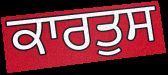
ਕਾਰਤੁਸ